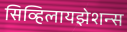
सिव्हिलायझेशन्स